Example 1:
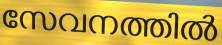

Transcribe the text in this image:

സേവനത്തിൽ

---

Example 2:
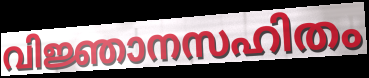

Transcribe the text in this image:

വിജ്ഞാനസഹിതം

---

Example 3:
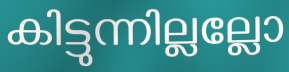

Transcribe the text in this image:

കിട്ടുന്നില്ലല്ലോ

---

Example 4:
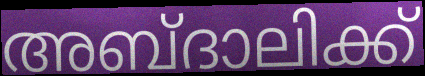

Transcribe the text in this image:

അബ്ദാലിക്ക്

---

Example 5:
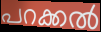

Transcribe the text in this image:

പറക്കൽ